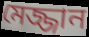
মেজ্জান